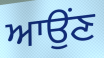
ਆਉਂਣ